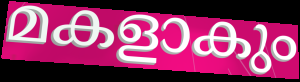
മകളാകും